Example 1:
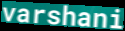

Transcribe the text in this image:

varshani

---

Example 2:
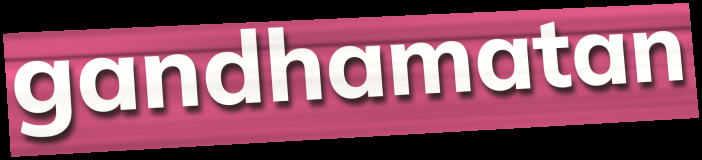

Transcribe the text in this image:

gandhamatan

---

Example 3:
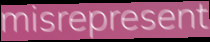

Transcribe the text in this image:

misrepresent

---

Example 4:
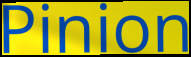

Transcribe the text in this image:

Pinion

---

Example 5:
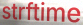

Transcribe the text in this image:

strftime